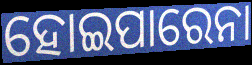
ହୋଇପାରେନା